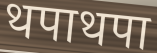
थपाथपा